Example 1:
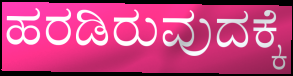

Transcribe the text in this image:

ಹರಡಿರುವುದಕ್ಕೆ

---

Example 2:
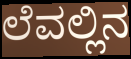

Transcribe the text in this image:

ಲೆವಲ್ಲಿನ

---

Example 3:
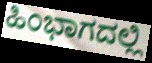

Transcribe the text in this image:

ಹಿಂಭಾಗದಲ್ಲಿ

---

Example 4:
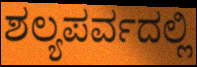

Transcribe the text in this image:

ಶಲ್ಯಪರ್ವದಲ್ಲಿ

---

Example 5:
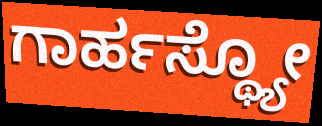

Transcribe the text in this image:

ಗಾರ್ಹಸ್ಥ್ಯೋ